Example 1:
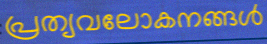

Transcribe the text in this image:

പ്രത്യവലോകനങ്ങൾ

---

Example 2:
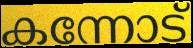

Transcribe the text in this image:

കന്നോട്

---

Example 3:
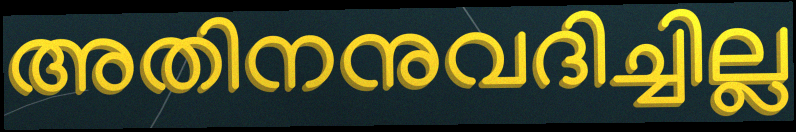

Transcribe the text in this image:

അതിനനുവദിച്ചില്ല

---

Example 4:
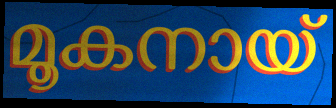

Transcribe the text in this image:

മൂകനായ്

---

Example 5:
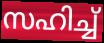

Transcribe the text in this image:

സഹിച്ച്